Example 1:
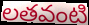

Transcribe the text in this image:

లతవంటి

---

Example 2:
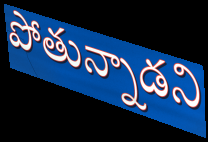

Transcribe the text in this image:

పోతున్నాడని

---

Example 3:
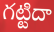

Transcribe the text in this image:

గట్టిదా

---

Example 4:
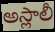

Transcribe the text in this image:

అస్లాలీ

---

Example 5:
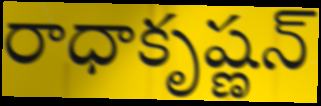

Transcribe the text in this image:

రాధాకృష్ణన్